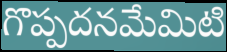
గొప్పదనమేమిటి